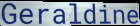
Geraldine